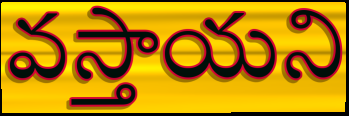
వస్తాయని